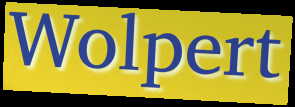
Wolpert